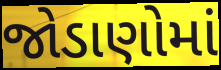
જોડાણોમાં